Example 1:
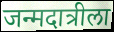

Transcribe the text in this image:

जन्मदात्रीला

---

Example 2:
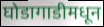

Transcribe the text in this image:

घोडागाडीमधून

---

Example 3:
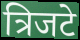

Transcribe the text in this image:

त्रिजटे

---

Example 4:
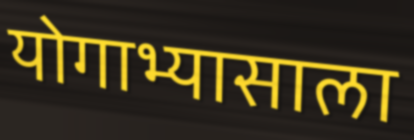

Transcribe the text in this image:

योगाभ्यासाला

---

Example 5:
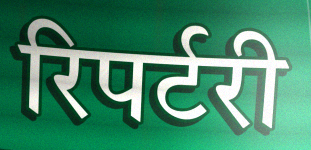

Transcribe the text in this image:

रिपर्टरी